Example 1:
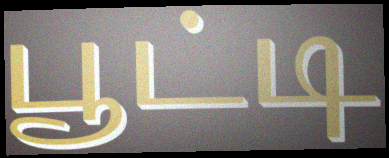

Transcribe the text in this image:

பூட்டி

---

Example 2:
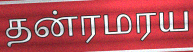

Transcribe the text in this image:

தன்ரமரய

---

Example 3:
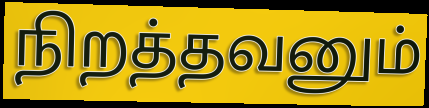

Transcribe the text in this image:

நிறத்தவனும்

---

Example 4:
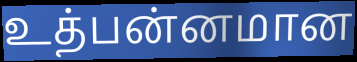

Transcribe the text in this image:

உத்பன்னமான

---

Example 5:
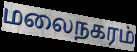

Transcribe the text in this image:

மலைநகரம்